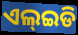
ଏଲ୍ଇଡି